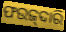
ଫଉଜ୍‌ଦାରି